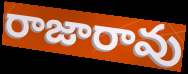
రాజారావు